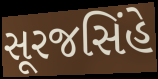
સૂરજસિંહે